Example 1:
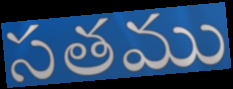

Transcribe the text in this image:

సతము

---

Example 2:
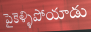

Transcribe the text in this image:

పైకెళ్ళిపోయాడు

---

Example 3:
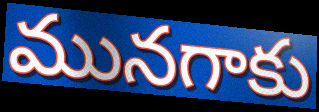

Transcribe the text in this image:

మునగాకు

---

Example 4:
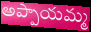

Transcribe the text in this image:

అప్పాయమ్మ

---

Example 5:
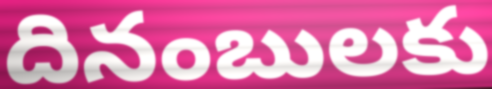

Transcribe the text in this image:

దినంబులకు